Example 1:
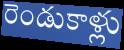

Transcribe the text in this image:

రెండుకాళ్లు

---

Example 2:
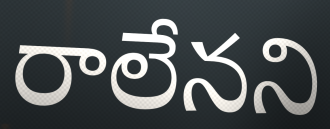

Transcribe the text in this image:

రాలేనని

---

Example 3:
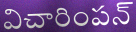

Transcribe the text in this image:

విచారింపన్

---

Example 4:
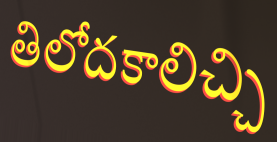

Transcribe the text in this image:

తిలోదకాలిచ్చి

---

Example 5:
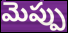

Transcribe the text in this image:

మెప్పు